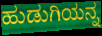
ಹುಡುಗಿಯನ್ನ